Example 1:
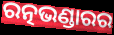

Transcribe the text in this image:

ରତ୍ନଭଣ୍ଡାରର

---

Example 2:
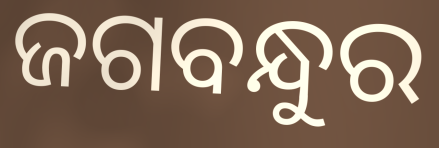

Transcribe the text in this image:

ଜଗବନ୍ଧୁର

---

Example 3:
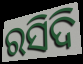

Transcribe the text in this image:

ରସିଦି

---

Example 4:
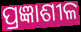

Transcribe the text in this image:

ପ୍ରଜ୍ଞାଶୀଳ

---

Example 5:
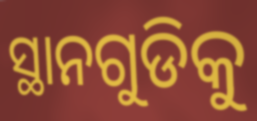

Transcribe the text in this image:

ସ୍ଥାନଗୁଡିକୁ